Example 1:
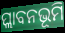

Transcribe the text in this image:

ପ୍ଲାବନଭୂମି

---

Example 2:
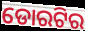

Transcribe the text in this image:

ଡୋରଟିର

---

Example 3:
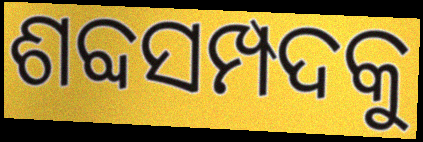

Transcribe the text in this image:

ଶବ୍ଦସମ୍ପଦକୁ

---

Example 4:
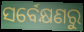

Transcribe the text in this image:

ସର୍ବେକ୍ଷଣରୁ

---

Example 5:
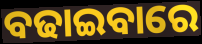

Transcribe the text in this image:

ବଢାଇବାରେ